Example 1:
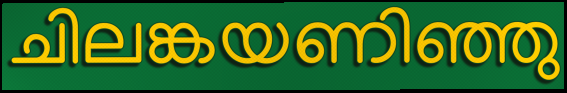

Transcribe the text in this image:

ചിലങ്കയണിഞ്ഞു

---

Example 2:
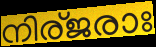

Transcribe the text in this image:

നിര്ജരാഃ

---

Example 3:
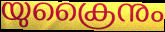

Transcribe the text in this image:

യുക്രൈനും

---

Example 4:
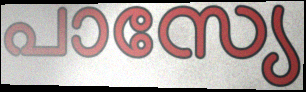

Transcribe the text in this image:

പാസ്യേ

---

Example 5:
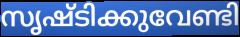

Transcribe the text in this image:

സൃഷ്ടിക്കുവേണ്ടി